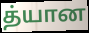
த்யான